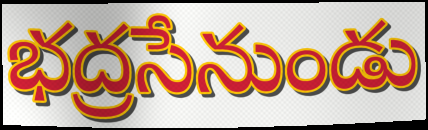
భద్రసేనుండు